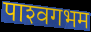
पाश्वगभम